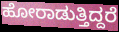
ಹೋರಾಡುತ್ತಿದ್ದರೆ